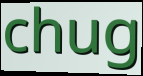
chug